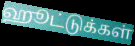
ஹூட்டுக்கள்